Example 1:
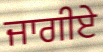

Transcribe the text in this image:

ਜਾਗੀਏ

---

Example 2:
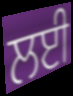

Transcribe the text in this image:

ਲਈ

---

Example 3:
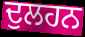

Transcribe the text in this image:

ਦੁਲਹਨ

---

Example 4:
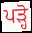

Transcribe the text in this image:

ਪੜ੍ਹੋ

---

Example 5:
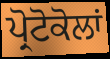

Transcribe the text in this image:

ਪ੍ਰੋਟੋਕੋਲਾਂ